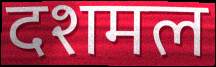
दशमल